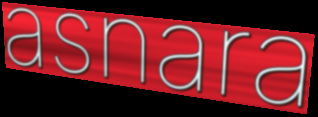
asnara